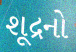
શૂદ્રનો